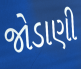
જોડાણી